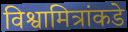
विश्वामित्रांकडे